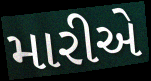
મારીએ